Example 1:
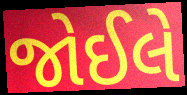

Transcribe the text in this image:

જોઈલે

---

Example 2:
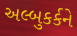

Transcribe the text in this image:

અલ્બુકર્કને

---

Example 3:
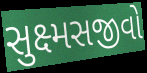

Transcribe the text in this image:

સુક્ષ્મસજીવો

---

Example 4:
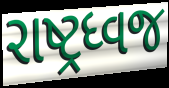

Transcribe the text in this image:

રાષ્ટ્રધ્વજ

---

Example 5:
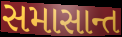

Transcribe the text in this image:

સમાસાન્ત